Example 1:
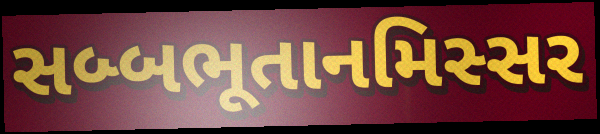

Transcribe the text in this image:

સબ્બભૂતાનમિસ્સર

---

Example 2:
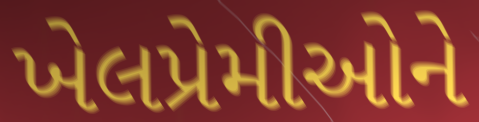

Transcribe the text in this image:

ખેલપ્રેમીઓને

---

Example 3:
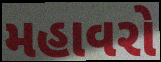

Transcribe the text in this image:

મહાવરો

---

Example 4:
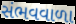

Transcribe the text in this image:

સંભવવાળા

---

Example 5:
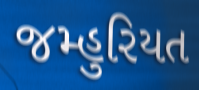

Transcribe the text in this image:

જમ્હુરિયત